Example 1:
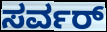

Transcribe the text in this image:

ಸರ್ವರ್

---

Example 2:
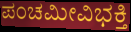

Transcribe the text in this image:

ಪಂಚಮೀವಿಭಕ್ತಿ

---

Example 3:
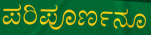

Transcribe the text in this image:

ಪರಿಪೂರ್ಣನೂ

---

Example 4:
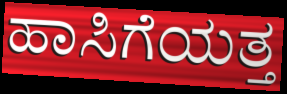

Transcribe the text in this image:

ಹಾಸಿಗೆಯತ್ತ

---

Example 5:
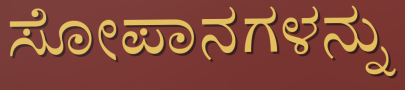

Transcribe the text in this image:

ಸೋಪಾನಗಳನ್ನು